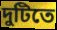
দুটিতে